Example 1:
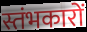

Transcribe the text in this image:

स्तंभकारों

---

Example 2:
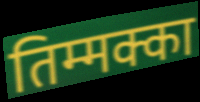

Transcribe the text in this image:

तिम्मक्का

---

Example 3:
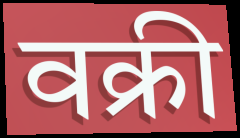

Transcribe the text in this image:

वक्री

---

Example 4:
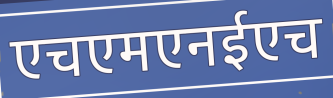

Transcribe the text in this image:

एचएमएनईएच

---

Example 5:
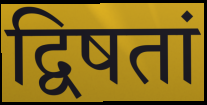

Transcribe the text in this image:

द्विषतां